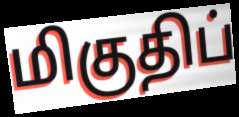
மிகுதிப்